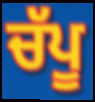
ਚੱਪੂ